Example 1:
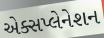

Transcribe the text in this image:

એક્સપ્લેનેશન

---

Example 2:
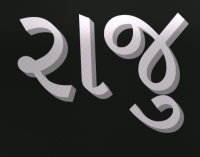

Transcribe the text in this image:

રાજુ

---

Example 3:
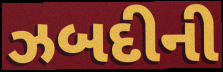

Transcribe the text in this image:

ઝબદીની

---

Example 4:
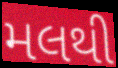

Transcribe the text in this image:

મલથી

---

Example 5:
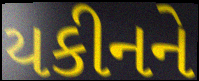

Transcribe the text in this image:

યકીનને